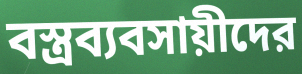
বস্ত্রব্যবসায়ীদের